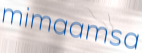
mimaamsa